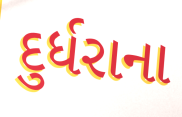
દુર્ધરાના